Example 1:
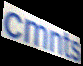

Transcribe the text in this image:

cmnts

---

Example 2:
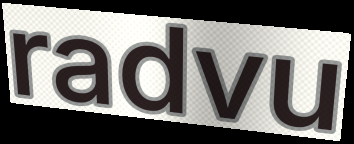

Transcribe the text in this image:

radvu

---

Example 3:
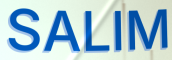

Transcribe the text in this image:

SALIM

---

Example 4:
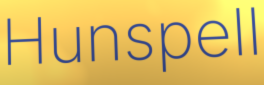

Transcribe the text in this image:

Hunspell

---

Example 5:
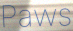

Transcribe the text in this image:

Paws